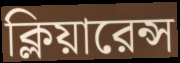
ক্লিয়ারেন্স